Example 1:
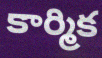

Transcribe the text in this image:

కార్మిక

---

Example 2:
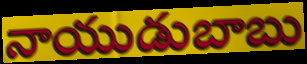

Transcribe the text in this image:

నాయుడుబాబు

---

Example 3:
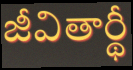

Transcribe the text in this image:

జీవితార్థీ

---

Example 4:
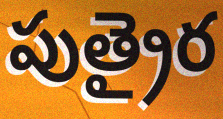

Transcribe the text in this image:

పుత్రైర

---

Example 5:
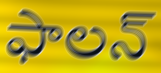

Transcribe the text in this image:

ఫాలన్